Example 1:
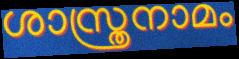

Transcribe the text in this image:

ശാസ്ത്രനാമം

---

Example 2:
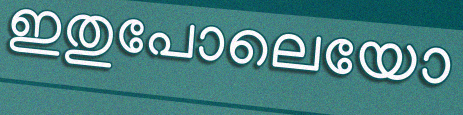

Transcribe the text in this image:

ഇതുപോലെയോ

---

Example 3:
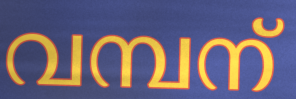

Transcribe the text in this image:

വമ്പന്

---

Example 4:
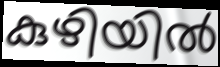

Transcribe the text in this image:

കുഴിയിൽ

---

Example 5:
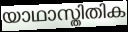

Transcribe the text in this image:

യാഥാസ്തിതിക